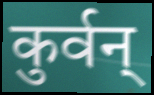
कुर्वन्